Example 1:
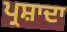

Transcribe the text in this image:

ਪ੍ਰਸ਼ਾਦਾ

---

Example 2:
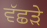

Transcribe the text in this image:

ਵੱਛੜੇ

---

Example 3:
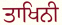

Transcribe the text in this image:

ਤਾਖਿਨੀ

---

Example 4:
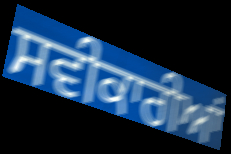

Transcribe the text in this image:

ਸਵੀਕਾਰੀਆਂ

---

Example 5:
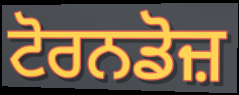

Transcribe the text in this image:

ਟੋਰਨਡੋਜ਼